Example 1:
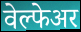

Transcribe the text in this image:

वेल्फेअर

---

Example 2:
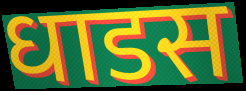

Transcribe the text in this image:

धाडस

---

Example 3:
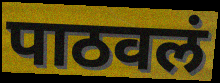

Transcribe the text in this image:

पाठवलं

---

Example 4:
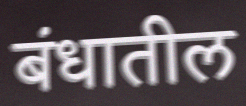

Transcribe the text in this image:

बंधातील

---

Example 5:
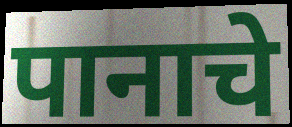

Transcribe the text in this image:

पानाचे